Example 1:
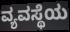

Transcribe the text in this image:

ವ್ಯವಸ್ಥೆಯ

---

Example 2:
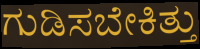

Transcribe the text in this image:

ಗುಡಿಸಬೇಕಿತ್ತು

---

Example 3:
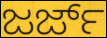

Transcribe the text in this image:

ಜರ್ಜ್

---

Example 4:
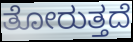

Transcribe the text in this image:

ತೋರುತ್ತದೆ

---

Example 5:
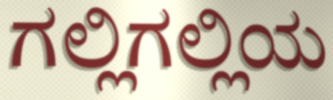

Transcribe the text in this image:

ಗಲ್ಲಿಗಲ್ಲಿಯ